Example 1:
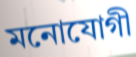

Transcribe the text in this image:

মনোযোগী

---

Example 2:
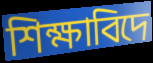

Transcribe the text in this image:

শিক্ষাবিদে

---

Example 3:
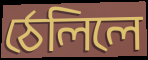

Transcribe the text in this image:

ঠেলিলে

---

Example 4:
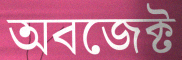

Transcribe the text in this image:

অবজেক্ট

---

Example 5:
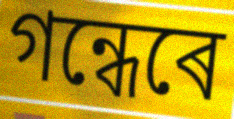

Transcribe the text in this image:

গন্ধেৰে